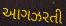
આગઝરતી